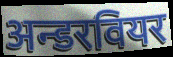
अन्डरवियर